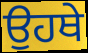
ਉਹਥੇ